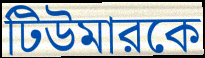
টিউমারকে